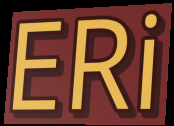
ERi